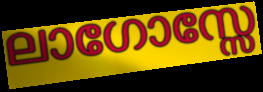
ലാഗോസ്സേ